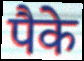
पैके